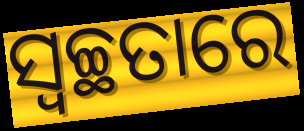
ସ୍ବଚ୍ଛତାରେ